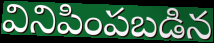
వినిపింపబడిన